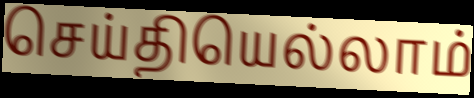
செய்தியெல்லாம்